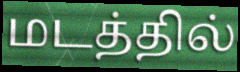
மடத்தில்